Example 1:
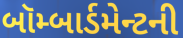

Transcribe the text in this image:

બૉમ્બાર્ડમેન્ટની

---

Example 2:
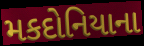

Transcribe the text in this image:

મકદોનિયાના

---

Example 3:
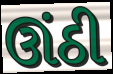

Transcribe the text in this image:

ઊંઠી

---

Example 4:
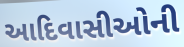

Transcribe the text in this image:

આદિવાસીઓની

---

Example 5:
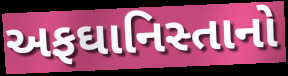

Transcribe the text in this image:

અફઘાનિસ્તાનો